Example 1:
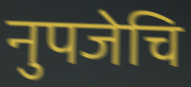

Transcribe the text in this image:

नुपजेचि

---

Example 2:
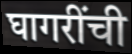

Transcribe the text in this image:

घागरींची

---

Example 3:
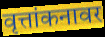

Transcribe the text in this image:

वृत्तांकनावर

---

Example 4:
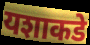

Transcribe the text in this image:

यशाकडे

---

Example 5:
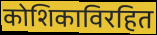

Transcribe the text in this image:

कोशिकाविरहित